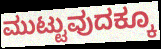
ಮುಟ್ಟುವುದಕ್ಕೂ